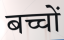
बच्चों